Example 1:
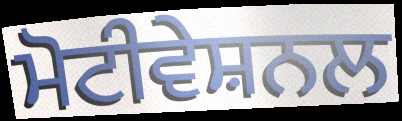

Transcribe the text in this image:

ਮੋਟੀਵੇਸ਼ਨਲ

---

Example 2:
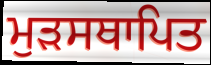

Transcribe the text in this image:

ਮੁੜਸਥਾਪਿਤ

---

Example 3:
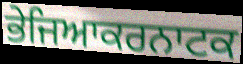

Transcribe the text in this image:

ਭੇਜਿਆਕਰਨਾਟਕ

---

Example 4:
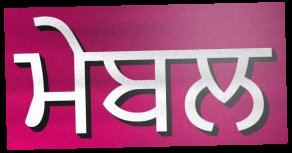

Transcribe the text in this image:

ਮੇਬਲ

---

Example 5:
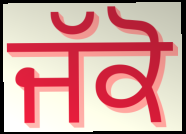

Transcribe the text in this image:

ਜੱਕੋ